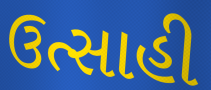
ઉત્સાહી